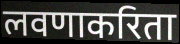
लवणाकरिता